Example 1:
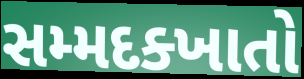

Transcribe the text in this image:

સમ્મદક્ખાતો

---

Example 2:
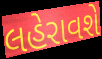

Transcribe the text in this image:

લહેરાવશે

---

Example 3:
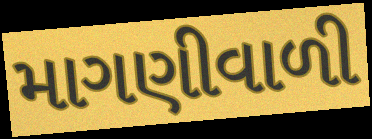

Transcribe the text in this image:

માગણીવાળી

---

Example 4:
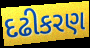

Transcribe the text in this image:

દઢીકરણ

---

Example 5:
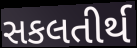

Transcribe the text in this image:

સકલતીર્થ